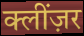
क्लींज़र